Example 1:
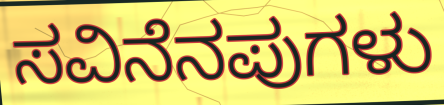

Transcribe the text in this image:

ಸವಿನೆನಪುಗಳು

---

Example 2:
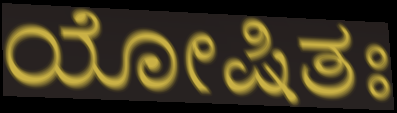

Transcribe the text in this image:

ಯೋಷಿತಃ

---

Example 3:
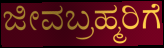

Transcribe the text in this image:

ಜೀವಬ್ರಹ್ಮರಿಗೆ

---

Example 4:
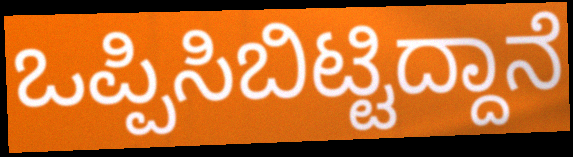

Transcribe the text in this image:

ಒಪ್ಪಿಸಿಬಿಟ್ಟಿದ್ದಾನೆ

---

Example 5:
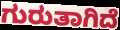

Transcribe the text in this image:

ಗುರುತಾಗಿದೆ